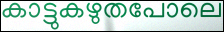
കാട്ടുകഴുതപോലെ